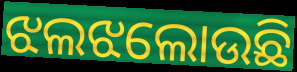
ଝଲଝଲୋଉଛି